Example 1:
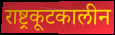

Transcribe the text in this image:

राष्ट्रकूटकालीन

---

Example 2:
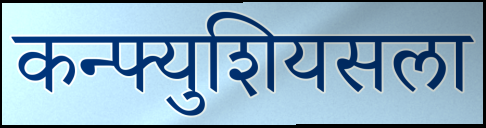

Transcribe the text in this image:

कन्फ्युशियसला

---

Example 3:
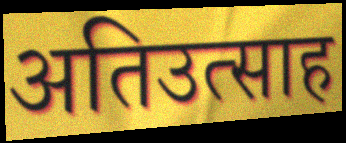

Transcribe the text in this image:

अतिउत्साह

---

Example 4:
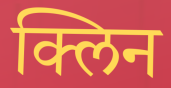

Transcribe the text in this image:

क्लिन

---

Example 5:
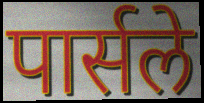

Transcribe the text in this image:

पार्सले